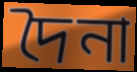
দৈনা